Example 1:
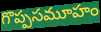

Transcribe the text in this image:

గొప్పసమూహం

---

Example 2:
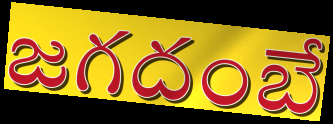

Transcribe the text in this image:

జగదంబే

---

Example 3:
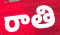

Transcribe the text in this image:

రాతి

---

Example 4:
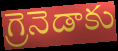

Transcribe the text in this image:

గ్రెనెడాకు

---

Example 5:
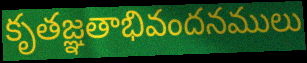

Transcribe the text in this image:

కృతజ్ఞతాభివందనములు